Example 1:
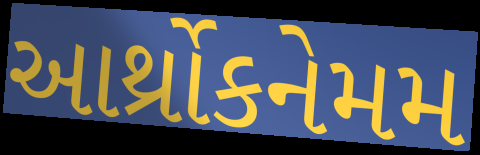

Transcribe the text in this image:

આર્થ્રોકનેમમ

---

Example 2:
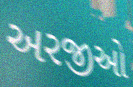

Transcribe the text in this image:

અરજીઓ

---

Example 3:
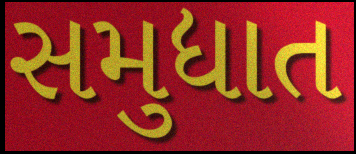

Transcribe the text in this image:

સમુદ્યાત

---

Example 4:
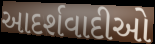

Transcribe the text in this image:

આદર્શવાદીઓ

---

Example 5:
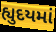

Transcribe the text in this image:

હ્યુદયમાં